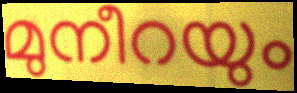
മുനീറയും